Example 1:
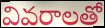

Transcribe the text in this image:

వివరాలతో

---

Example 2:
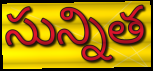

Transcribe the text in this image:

సున్నిత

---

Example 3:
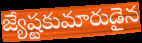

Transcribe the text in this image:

జ్యేష్టకుమారుడైన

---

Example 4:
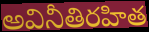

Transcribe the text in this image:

అవినీతిరహిత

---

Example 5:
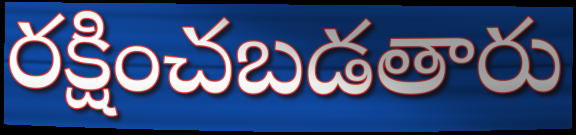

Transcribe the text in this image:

రక్షించబడతారు